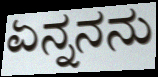
ಏನ್ನನನು